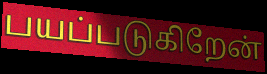
பயப்படுகிறேன்